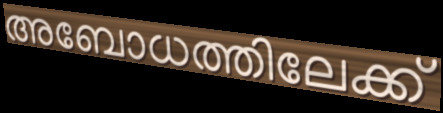
അബോധത്തിലേക്ക്